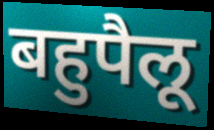
बहुपैलू